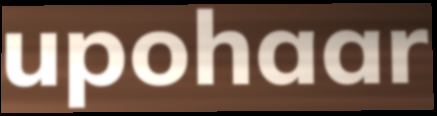
upohaar